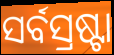
ସର୍ବସ୍ରଷ୍ଟା